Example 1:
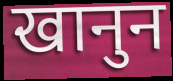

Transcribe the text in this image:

खानुन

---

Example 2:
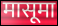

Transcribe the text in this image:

मासूमा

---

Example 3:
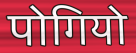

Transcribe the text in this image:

पोगियो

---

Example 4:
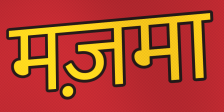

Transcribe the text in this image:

मज़मा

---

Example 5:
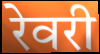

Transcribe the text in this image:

रेवरी